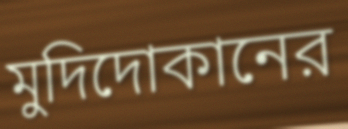
মুদিদোকানের